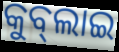
କୁବ୍‌ଲାଇ